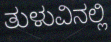
ತುಳುವಿನಲ್ಲಿ